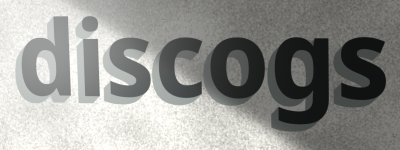
discogs